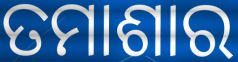
ତମାଶାର